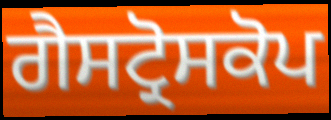
ਗੈਸਟ੍ਰੋਸਕੋਪ